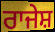
ਰਾਜੇਸ਼